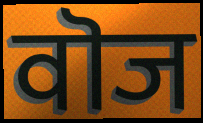
वॊज